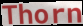
Thorn